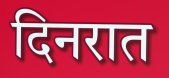
दिनरात